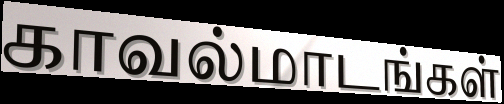
காவல்மாடங்கள்